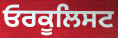
ਓਰਕੂਲਿਸਟ